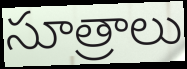
సూత్రాలు